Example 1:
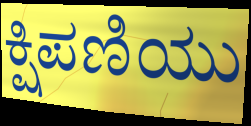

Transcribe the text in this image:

ಕ್ಷಿಪಣಿಯು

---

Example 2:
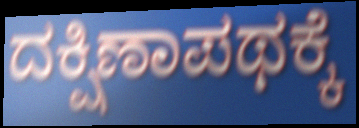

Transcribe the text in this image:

ದಕ್ಷಿಣಾಪಥಕ್ಕೆ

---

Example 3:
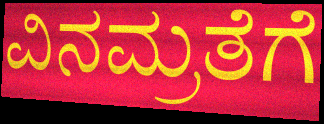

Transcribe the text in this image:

ವಿನಮ್ರತೆಗೆ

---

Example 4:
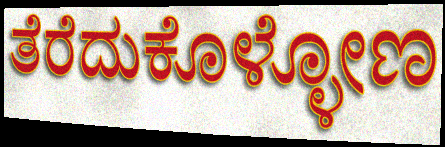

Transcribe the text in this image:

ತೆರೆದುಕೊಳ್ಳೋಣ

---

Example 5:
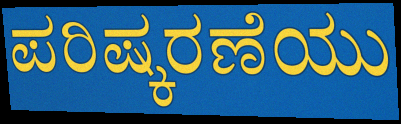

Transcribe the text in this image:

ಪರಿಷ್ಕರಣೆಯು